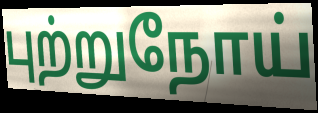
புற்றுநோய்